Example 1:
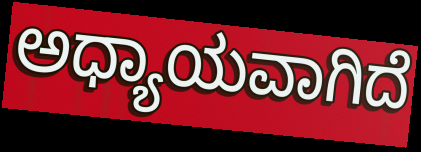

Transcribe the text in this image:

ಅಧ್ಯಾಯವಾಗಿದೆ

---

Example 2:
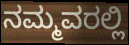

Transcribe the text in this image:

ನಮ್ಮವರಲ್ಲಿ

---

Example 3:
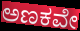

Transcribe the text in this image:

ಅಣಕವೇ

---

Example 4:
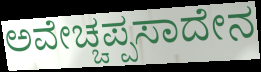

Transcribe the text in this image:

ಅವೇಚ್ಚಪ್ಪಸಾದೇನ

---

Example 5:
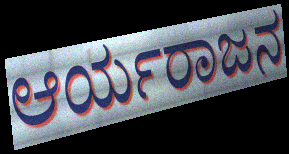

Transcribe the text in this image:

ಆರ್ಯರಾಜನ